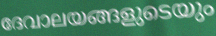
ദേവാലയങ്ങളുടെയും